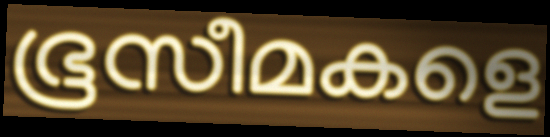
ഭൂസീമകളെ